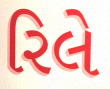
રિલે